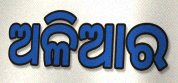
ଅଳିଆର